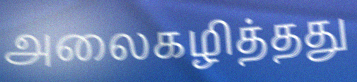
அலைகழித்தது